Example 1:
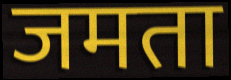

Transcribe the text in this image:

जमता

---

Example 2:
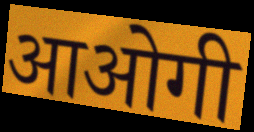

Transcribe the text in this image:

आओगी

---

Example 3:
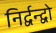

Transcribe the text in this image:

निर्द्वन्द्वो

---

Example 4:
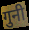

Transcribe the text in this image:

गुनी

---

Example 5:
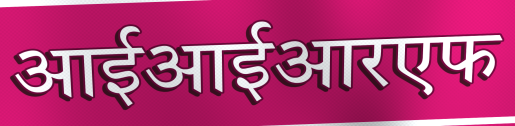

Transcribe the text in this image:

आईआईआरएफ